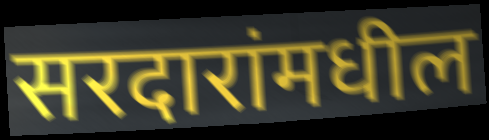
सरदारांमधील